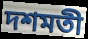
দশমতী